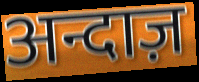
अन्दाज़